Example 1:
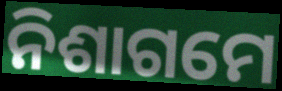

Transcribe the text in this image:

ନିଶାଗମେ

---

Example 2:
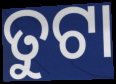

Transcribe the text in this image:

ତୁଟା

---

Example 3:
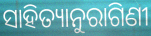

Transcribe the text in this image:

ସାହିତ୍ୟାନୁରାଗିଣୀ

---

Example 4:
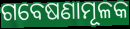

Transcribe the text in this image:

ଗବେଷଣାମୂଳକ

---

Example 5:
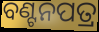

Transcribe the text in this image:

ବଣ୍ଟନପତ୍ର